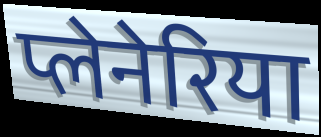
प्लेनेरिया